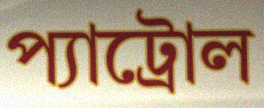
প্যাট্রোল